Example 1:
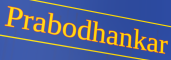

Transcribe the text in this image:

Prabodhankar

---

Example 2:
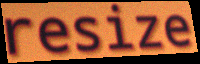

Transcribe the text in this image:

resize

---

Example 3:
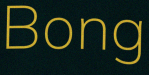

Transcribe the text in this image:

Bong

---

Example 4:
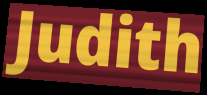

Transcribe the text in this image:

Judith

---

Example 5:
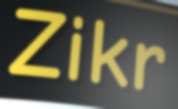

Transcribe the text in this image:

Zikr